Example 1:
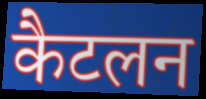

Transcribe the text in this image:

कैटलन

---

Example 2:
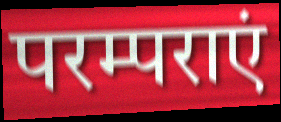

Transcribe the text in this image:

परम्पराएं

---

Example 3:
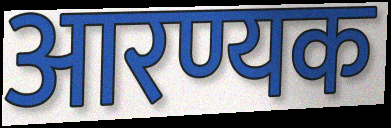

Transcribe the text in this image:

आरण्यक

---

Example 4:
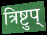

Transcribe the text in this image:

त्रिष्टुप्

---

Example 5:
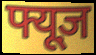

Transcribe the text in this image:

फ्यूज़